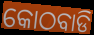
କୋଠବାଡି